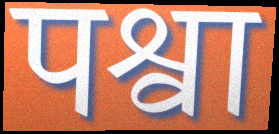
पश्वा